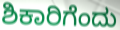
ಶಿಕಾರಿಗೆಂದು